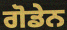
ਗੋਡੇਨ